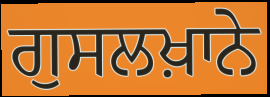
ਗੁਸਲਖ਼ਾਨੇ